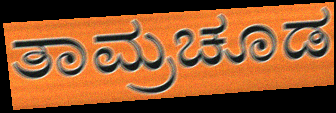
ತಾಮ್ರಚೂಡ